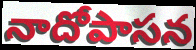
నాదోపాసన